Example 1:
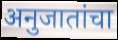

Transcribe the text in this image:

अनुजातांचा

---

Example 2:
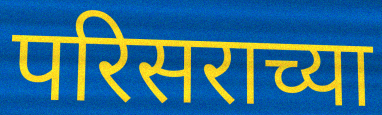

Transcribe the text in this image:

परिसराच्या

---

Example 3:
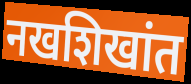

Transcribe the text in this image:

नखशिखांत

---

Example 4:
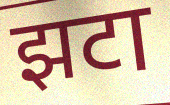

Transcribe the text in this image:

झटा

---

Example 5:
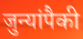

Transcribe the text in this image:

जुन्यांपैकी